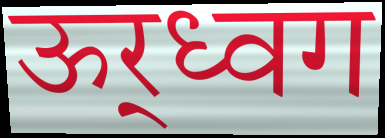
ऊर्ध्वग